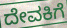
ದೇವಕಿಗೆ